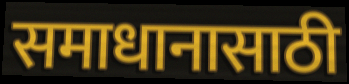
समाधानासाठी